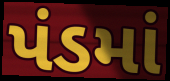
પંડમાં